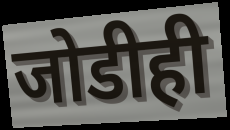
जोडीही